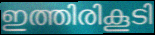
ഇത്തിരികൂടി